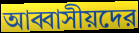
আব্বাসীয়দের